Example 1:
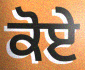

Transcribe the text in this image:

ਕੋਏ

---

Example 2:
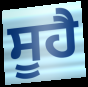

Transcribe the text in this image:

ਸੂਹੈ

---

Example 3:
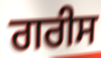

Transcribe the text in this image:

ਗਰੀਸ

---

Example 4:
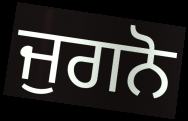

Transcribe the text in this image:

ਜੁਗਨੋ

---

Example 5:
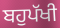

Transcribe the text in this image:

ਬਹੁਪੱਖੀ